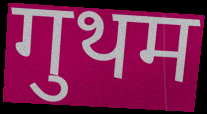
गुथम